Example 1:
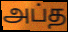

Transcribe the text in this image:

அப்த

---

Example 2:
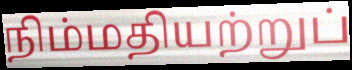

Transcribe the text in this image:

நிம்மதியற்றுப்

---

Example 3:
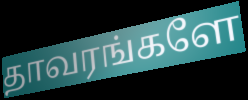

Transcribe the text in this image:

தாவரங்களே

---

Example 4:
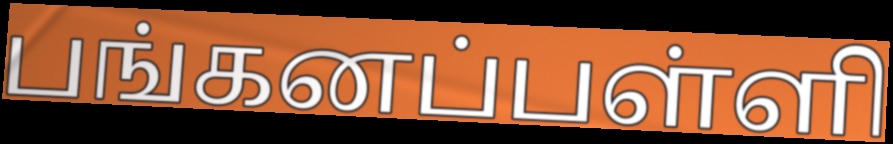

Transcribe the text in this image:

பங்கனப்பள்ளி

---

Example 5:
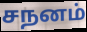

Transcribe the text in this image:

சநனம்